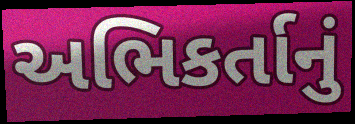
અભિકર્તાનું